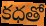
కధతో